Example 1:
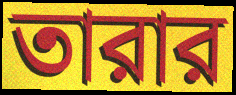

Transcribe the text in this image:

তারার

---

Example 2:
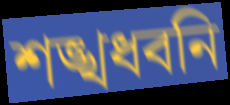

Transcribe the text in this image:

শঙ্খধবনি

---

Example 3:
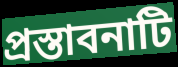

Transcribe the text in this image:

প্রস্তাবনাটি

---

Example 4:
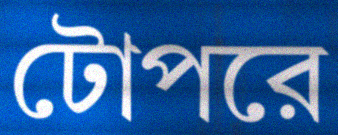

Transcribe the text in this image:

টোপরে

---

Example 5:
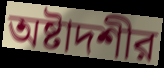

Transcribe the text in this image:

অষ্টাদশীর